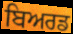
ਬਿਅਰਡ